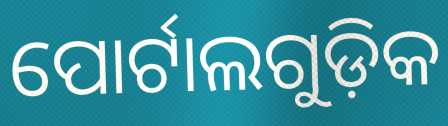
ପୋର୍ଟାଲଗୁଡ଼ିକ